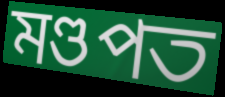
মণ্ডপত